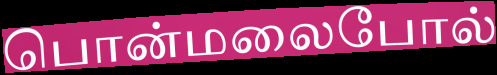
பொன்மலைபோல்